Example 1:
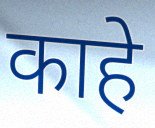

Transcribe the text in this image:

काहे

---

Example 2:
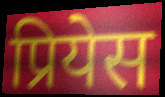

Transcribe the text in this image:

प्रियेस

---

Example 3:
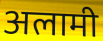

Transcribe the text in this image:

अलामी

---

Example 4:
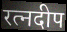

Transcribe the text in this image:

रत्नदीप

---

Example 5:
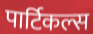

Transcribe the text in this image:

पार्टिकल्‍स